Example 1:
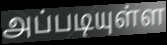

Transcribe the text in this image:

அப்படியுள்ள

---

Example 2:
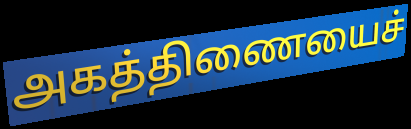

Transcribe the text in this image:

அகத்திணையைச்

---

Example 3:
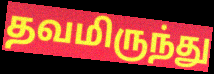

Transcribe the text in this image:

தவமிருந்து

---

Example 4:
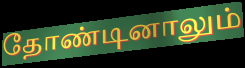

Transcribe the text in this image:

தோண்டினாலும்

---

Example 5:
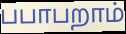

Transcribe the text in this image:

பபாபறாம்